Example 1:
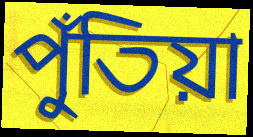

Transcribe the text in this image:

পুঁতিয়া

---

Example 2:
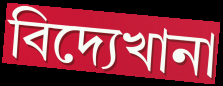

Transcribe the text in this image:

বিদ্যেখানা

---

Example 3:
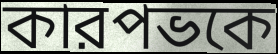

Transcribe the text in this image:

কারপভকে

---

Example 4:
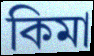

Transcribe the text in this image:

কিমা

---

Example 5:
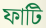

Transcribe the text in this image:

ফাটি